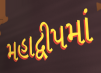
મહાદ્વીપમાં